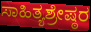
ಸಾಹಿತ್ಯಶ್ರೇಷ್ಠರ